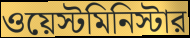
ওয়েস্টমিনিস্টার